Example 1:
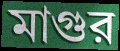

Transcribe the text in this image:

মাগুর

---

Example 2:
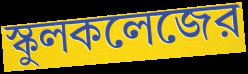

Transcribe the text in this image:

স্কুলকলেজের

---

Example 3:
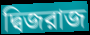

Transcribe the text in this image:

দ্বিজরাজ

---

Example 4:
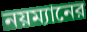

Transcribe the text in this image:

নয়ম্যানের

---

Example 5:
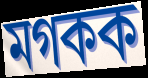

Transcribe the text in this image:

মগকক